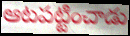
ఆటపట్టించాడు